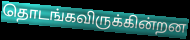
தொடங்கவிருக்கின்றன